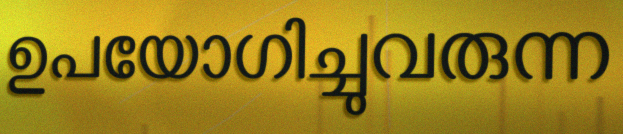
ഉപയോഗിച്ചുവരുന്ന